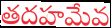
తదహమేవ